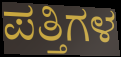
ಪತ್ತಿಗಳ